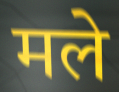
मले